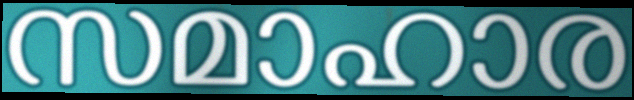
സമാഹാര